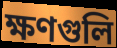
ক্ষণগুলি